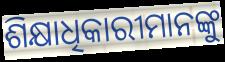
ଶିକ୍ଷାଧିକାରୀମାନଙ୍କୁ